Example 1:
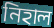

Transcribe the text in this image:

নিহাল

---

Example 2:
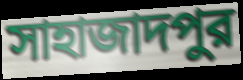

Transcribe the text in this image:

সাহাজাদপুর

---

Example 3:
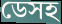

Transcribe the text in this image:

ডেসহ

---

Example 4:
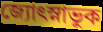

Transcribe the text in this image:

জ্যোৎস্নাভুক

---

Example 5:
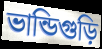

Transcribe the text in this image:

ভান্ডিগুড়ি